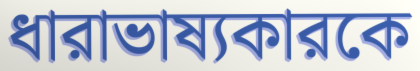
ধারাভাষ্যকারকে